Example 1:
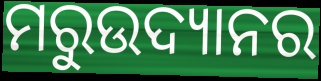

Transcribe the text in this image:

ମରୁଉଦ୍ୟାନର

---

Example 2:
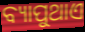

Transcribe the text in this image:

ବ୍ୟାପୁଥାଏ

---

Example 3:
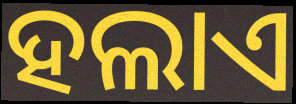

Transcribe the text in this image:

ହଲାଏ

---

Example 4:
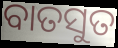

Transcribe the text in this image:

ବାତସୁତ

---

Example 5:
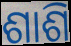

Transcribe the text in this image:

ଶାଶି